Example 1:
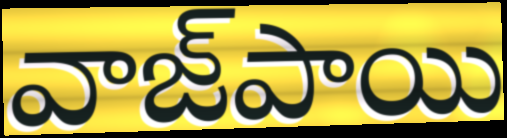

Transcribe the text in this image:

వాజ్‌పాయి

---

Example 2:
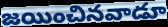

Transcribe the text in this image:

జయించినవాడూ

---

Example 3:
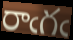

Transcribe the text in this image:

రాఁగఁ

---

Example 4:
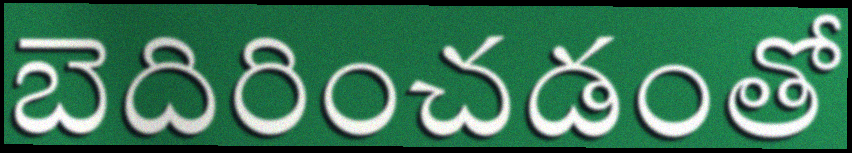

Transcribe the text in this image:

బెదిరించడంతో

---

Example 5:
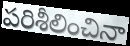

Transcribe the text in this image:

పరిశీలించినా